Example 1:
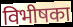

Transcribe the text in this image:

विभीषका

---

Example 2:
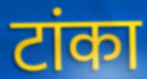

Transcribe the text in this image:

टांका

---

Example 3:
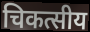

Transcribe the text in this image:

चिकत्सीय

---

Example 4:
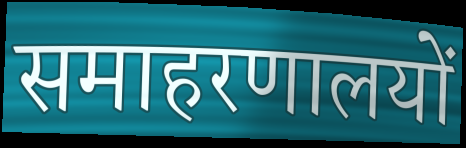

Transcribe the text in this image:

समाहरणालयों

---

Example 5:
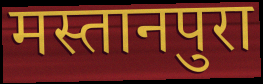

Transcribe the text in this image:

मस्तानपुरा